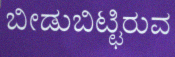
ಬೀಡುಬಿಟ್ಟಿರುವ